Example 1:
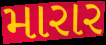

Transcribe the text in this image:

મારાર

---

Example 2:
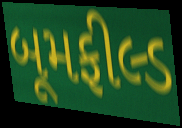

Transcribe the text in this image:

બૂમફીલ્ડ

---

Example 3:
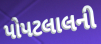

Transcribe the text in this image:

પોપટલાલની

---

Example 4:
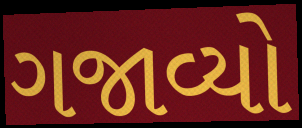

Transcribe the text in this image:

ગજાવ્યો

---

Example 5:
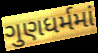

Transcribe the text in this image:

ગુણધર્મમાં